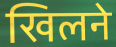
खिलने